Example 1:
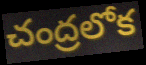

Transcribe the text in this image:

చంద్రలోక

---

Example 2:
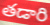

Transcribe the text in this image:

తడారి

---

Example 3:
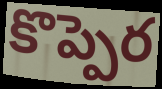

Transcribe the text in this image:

కొప్పెర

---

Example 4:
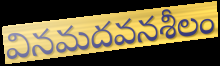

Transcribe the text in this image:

వినమదవనశీలం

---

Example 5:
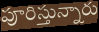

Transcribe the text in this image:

పూరిస్తున్నారు